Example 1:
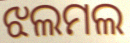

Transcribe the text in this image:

ଝଲମଲ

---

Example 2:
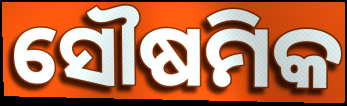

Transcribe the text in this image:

ସୌଷମିକ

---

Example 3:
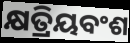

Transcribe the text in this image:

କ୍ଷତ୍ରିୟବଂଶ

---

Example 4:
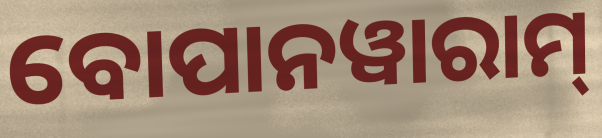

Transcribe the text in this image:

ବୋପାନୱାରାମ୍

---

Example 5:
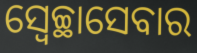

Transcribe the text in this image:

ସ୍ୱେଚ୍ଛାସେବାର